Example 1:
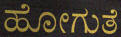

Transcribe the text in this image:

ಹೋಗುತೆ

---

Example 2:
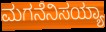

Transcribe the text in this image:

ಮಗನೆನಿಸಯ್ಯಾ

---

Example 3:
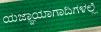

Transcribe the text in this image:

ಯಜ್ಞಾಯಾಗಾದಿಗಳಲ್ಲಿ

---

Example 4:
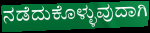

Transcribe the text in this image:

ನಡೆದುಕೊಳ್ಳುವುದಾಗಿ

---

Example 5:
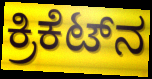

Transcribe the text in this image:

ಕ್ರಿಕೆಟ್‌ನ